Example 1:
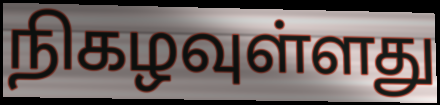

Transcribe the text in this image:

நிகழவுள்ளது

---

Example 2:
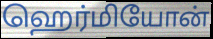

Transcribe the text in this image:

ஹெர்மியோன்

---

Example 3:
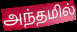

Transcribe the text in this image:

அந்தமில்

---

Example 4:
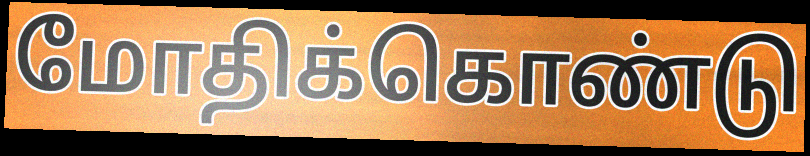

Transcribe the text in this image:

மோதிக்கொண்டு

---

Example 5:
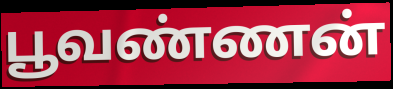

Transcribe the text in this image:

பூவண்ணன்